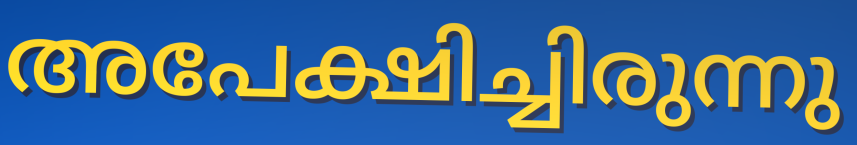
അപേക്ഷിച്ചിരുന്നു